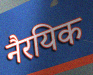
नैरयिक